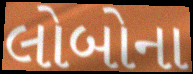
લોબોના